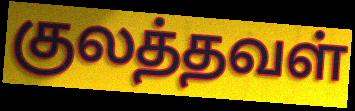
குலத்தவள்